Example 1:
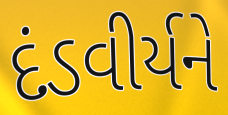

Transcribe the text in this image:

દંડવીર્યને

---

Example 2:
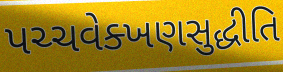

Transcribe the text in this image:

પચ્ચવેક્ખણસુદ્ધીતિ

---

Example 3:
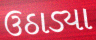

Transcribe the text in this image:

ઉઠાડ્યા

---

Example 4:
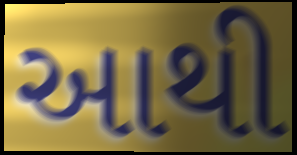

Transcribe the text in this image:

આથી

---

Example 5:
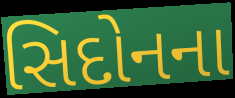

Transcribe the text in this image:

સિદોનના